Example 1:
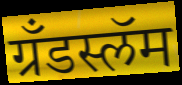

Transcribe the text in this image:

ग्रँडस्लॅम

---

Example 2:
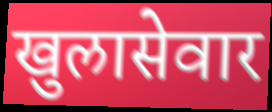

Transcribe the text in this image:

खुलासेवार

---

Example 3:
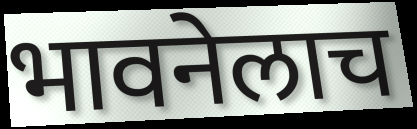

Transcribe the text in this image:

भावनेलाच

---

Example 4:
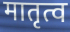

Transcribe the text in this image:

मातृत्व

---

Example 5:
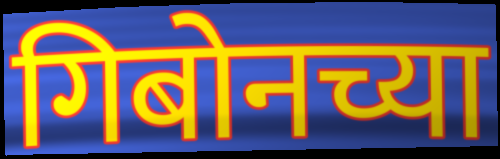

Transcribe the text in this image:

गिबोनच्या